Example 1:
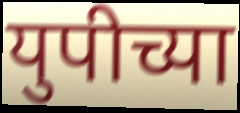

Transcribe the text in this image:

युपीच्या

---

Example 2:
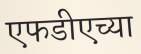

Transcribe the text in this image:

एफडीएच्या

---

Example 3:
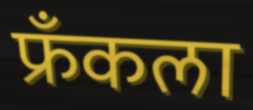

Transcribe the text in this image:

फ्रॅंकला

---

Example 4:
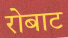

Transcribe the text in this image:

रोबाट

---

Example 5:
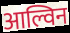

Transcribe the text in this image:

आल्विन